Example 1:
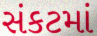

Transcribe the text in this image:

સંકટમાં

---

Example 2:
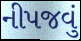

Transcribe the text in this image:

નીપજવું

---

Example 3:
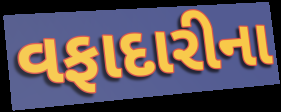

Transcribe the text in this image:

વફાદારીના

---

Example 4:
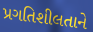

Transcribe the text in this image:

પ્રગતિશીલતાને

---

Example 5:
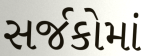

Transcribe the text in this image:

સર્જકોમાં